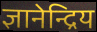
ज्ञानेन्द्रिय